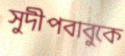
সুদীপবাবুকে